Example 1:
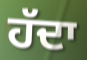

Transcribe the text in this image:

ਹੱਦਾ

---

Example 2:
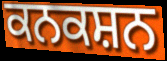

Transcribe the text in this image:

ਕਨਕਸ਼ਨ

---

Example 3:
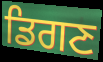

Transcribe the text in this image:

ਡਿਗਣ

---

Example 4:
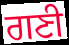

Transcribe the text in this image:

ਗਣੀ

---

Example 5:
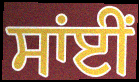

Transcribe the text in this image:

ਸਾਂਈਂ